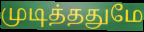
முடித்ததுமே